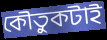
কৌতুকটাই